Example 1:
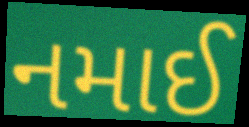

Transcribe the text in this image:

નમાઈ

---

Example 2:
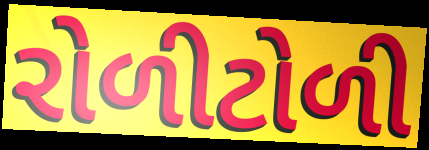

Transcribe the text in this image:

રોળીટોળી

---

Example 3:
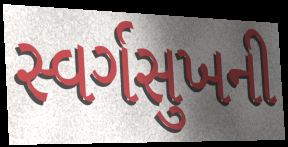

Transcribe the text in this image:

સ્વર્ગસુખની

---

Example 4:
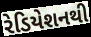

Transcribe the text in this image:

રેડિયેશનથી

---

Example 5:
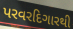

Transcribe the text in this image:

પરવરદિગારથી